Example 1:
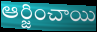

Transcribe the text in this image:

ఆర్జించాయి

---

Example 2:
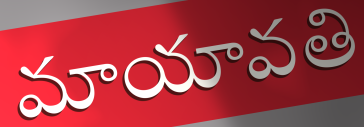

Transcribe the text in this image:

మాయావతి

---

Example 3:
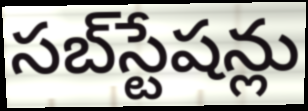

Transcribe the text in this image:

సబ్‌స్టేషన్లు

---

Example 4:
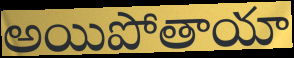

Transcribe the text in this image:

అయిపోతాయా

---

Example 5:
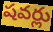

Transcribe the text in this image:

షవర్లు